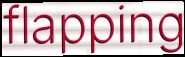
flapping